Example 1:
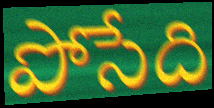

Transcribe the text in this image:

పోసేది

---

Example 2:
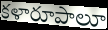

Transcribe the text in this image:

కళారూపాలూ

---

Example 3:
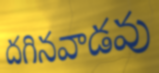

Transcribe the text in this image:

దగినవాడవు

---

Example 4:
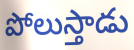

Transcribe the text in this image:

పోలుస్తాడు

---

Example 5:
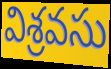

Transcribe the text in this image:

విశ్రవసు